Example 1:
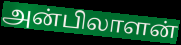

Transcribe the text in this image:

அன்பிலாளன்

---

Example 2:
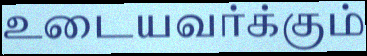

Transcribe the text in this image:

உடையவர்க்கும்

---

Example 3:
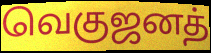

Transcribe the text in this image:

வெகுஜனத்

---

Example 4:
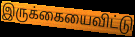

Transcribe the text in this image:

இருக்கையைவிட்டு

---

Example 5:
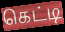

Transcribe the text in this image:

கெட்டி